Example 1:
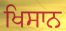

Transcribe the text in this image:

ਖਿਸਾਨ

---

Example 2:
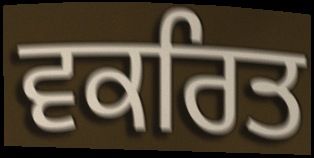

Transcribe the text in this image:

ਵਕਰਿਤ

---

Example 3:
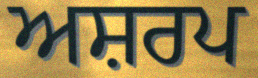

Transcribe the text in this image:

ਅਸ਼ਰਪ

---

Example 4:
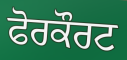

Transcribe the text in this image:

ਫੋਰਕੌਰਟ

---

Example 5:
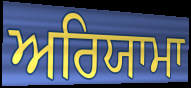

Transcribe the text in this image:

ਅਰਿਯਾਮਾ